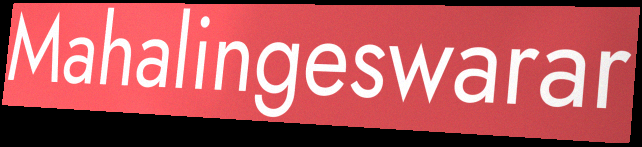
Mahalingeswarar